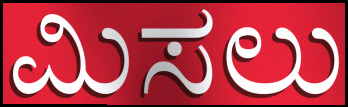
ಮಿಸಲು